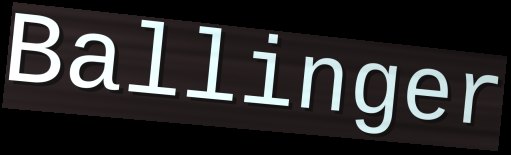
Ballinger